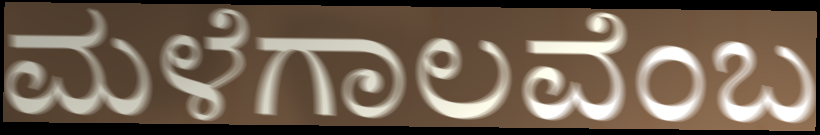
ಮಳೆಗಾಲವೆಂಬ